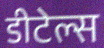
डीटेल्स